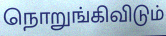
நொறுங்கிவிடும்